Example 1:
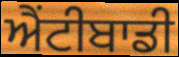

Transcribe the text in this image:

ਐਂਟੀਬਾਡੀ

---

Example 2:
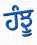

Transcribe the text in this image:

ਹੰਝੂ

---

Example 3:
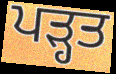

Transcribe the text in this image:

ਪਡ਼੍ਹਤ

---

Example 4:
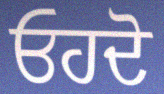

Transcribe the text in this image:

ਓਹਦੋ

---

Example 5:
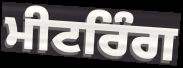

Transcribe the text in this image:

ਮੀਟਰਿੰਗ